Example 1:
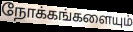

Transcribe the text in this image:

நோக்கங்களையும்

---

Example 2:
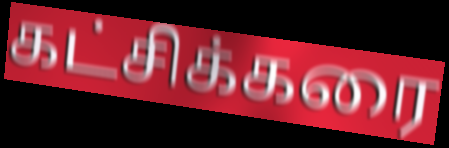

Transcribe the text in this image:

கட்சிக்கரை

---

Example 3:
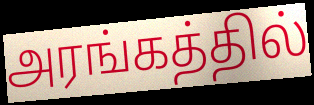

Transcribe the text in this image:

அரங்கத்தில்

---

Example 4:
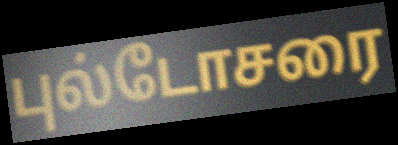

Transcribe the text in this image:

புல்டோசரை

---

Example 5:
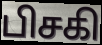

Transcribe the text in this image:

பிசகி